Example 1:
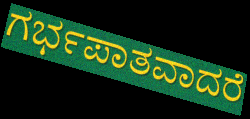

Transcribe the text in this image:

ಗರ್ಭಪಾತವಾದರೆ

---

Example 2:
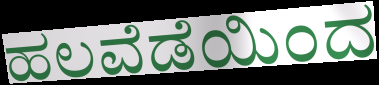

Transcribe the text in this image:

ಹಲವೆಡೆಯಿಂದ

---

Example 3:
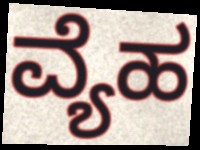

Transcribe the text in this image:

ವ್ಯೆಹ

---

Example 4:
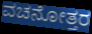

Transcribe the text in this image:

ವಚನೋತ್ತರ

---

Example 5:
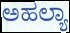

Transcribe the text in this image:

ಅಹಲ್ಯಾ